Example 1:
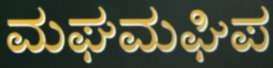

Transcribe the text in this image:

ಮಘಮಘಿಪ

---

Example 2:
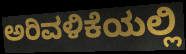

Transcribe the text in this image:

ಅರಿವಳಿಕೆಯಲ್ಲಿ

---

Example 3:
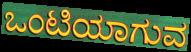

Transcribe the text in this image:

ಒಂಟಿಯಾಗುವ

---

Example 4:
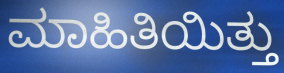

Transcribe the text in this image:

ಮಾಹಿತಿಯಿತ್ತು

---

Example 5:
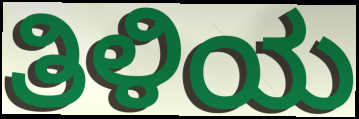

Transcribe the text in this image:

ತಿಳಿಯ